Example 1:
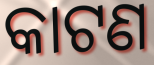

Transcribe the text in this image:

କାଟଣ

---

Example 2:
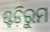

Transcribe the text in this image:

ଷ୍ଟଡ଼ିରୁମ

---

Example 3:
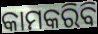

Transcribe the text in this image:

କାମକରିବି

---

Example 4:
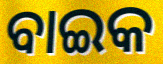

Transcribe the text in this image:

ବାଇକ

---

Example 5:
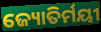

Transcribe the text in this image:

ଜ୍ୟୋତିର୍ମୟୀ